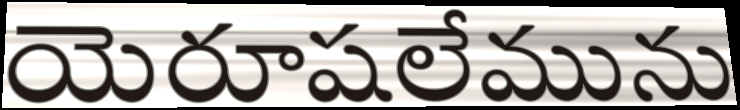
యెరూషలేమును